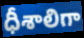
ధీశాలిగా